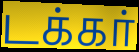
டக்கர்